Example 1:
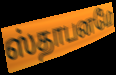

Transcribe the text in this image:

ஸ்தாபனமே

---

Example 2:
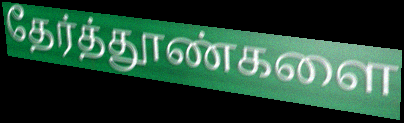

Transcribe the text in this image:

தேர்த்தூண்களை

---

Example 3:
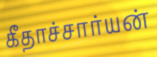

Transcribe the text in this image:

கீதாச்சார்யன்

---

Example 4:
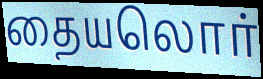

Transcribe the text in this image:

தையலொர்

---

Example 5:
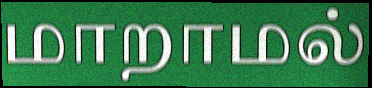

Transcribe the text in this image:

மாறாமல்